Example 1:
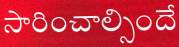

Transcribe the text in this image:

సారించాల్సిందే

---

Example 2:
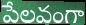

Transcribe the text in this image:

పేలవంగా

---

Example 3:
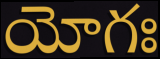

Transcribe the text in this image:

యోగః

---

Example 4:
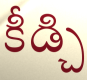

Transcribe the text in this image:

కీడ్చి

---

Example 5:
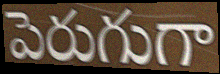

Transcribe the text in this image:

పెరుగుగా